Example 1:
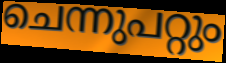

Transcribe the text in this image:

ചെന്നുപറ്റും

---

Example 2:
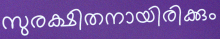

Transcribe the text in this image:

സുരക്ഷിതനായിരിക്കും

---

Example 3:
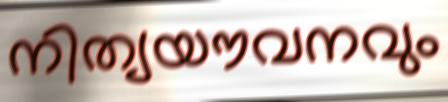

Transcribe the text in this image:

നിത്യയൗവനവും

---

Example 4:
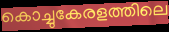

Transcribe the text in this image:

കൊച്ചുകേരളത്തിലെ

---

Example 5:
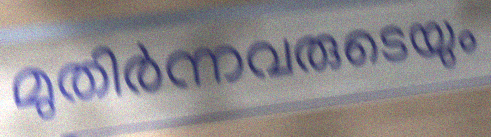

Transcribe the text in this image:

മുതിർന്നവരുടെയും